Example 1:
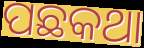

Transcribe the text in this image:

ପଛକଥା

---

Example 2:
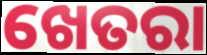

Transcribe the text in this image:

ଖେତରା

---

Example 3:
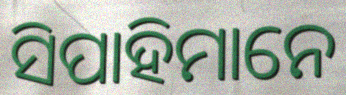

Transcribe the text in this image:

ସିପାହିମାନେ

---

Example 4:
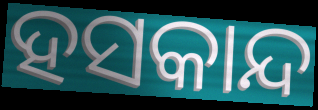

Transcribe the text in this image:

ହସକାନ୍ଦ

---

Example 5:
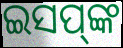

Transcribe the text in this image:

ଇସପ୍‌ଙ୍କ